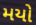
મયો